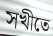
সখীতে